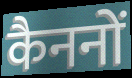
कैननों